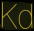
Kd